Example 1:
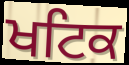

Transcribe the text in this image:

ਖਟਿਕ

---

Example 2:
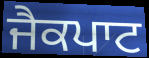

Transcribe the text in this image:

ਜੈਕਪਾਟ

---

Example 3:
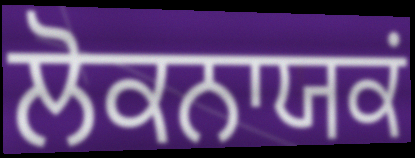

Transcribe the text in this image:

ਲੋਕਨਾਯਕਂ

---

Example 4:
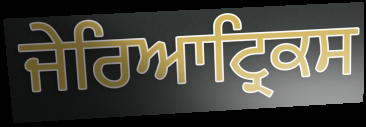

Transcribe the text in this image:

ਜੇਰਿਆਟ੍ਰਿਕਸ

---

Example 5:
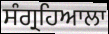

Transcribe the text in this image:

ਸੰਗ੍ਰਹਿਆਲਾ